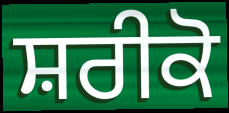
ਸ਼ਰੀਕੋ